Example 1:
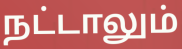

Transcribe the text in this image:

நட்டாலும்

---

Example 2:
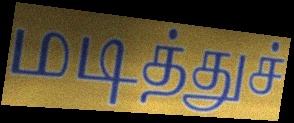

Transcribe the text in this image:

மடித்துச்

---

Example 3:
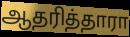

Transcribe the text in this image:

ஆதரித்தாரா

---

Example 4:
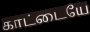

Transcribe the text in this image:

காட்டையே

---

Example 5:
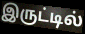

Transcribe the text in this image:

இருட்டில்